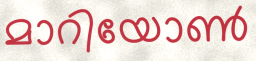
മാറിയോൺ